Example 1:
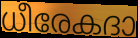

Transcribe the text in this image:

ധീരേകദാ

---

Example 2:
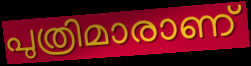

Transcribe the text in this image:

പുത്രിമാരാണ്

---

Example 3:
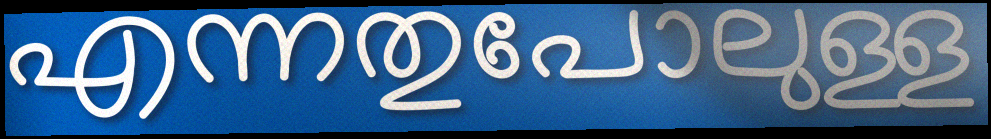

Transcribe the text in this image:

എന്നതുപോലുള്ള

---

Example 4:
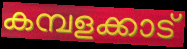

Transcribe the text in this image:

കമ്പളക്കാട്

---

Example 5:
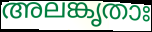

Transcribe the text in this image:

അലങ്കൃതാഃ